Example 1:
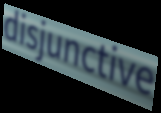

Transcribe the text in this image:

disjunctive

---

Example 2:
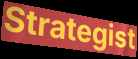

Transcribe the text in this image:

Strategist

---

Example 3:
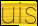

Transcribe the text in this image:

uis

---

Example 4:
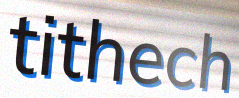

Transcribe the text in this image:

tithech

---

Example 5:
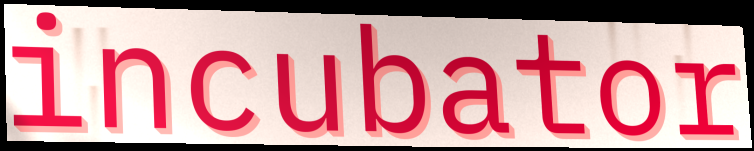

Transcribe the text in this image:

incubator